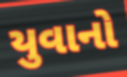
યુવાનો